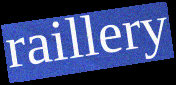
raillery